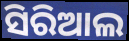
ସିରିଆଲ